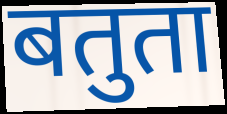
बतुता